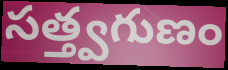
సత్త్వగుణం